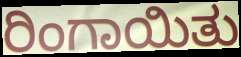
ರಿಂಗಾಯಿತು